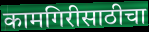
कामगिरीसाठीचा